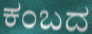
ಕಂಬದ